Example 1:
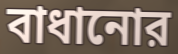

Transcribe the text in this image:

বাধানোর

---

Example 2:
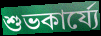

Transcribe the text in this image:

শুভকার্য্যে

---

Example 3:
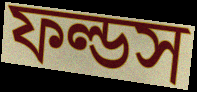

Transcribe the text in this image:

ফল্ডস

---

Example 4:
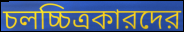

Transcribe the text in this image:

চলচ্চিত্রকারদের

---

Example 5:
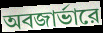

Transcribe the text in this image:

অবজার্ভারে